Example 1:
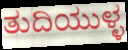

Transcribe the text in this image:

ತುದಿಯುಳ್ಳ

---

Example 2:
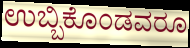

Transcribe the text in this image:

ಉಬ್ಬಿಕೊಂಡವರೂ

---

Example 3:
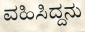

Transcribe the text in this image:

ವಹಿಸಿದ್ದನು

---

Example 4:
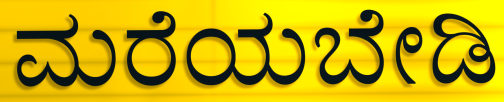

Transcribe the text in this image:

ಮರೆಯಬೇಡಿ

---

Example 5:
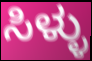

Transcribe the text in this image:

ಸಿಳ್ಳು